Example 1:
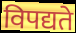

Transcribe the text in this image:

विपद्यते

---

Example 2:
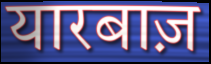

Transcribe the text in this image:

यारबाज़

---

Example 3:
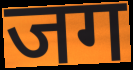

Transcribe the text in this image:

जग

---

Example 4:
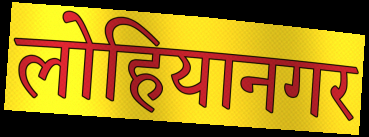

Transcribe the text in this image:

लोहियानगर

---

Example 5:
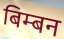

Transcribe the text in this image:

बिम्बन